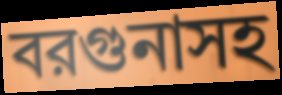
বরগুনাসহ